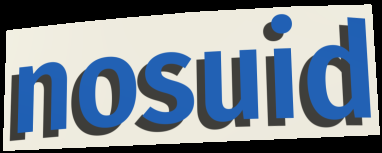
nosuid